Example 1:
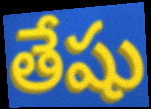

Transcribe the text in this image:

తేషు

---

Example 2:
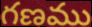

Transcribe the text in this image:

గణము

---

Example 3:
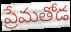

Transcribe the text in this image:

ప్రేమతోడ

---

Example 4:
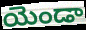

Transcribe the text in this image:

యెండా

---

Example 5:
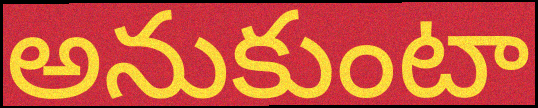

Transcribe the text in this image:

అనుకుంటా